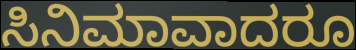
ಸಿನಿಮಾವಾದರೂ